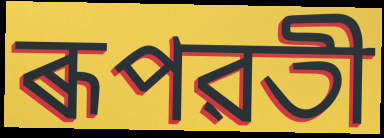
ৰূপৱতী